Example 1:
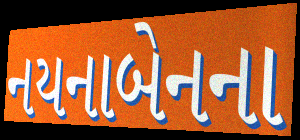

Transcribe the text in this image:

નયનાબેનના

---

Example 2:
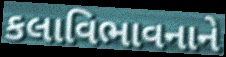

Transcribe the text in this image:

કલાવિભાવનાને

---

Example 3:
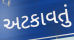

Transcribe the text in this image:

અટકાવતું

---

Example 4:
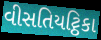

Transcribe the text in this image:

વીસતિયટ્ઠિકા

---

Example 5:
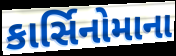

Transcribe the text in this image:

કાર્સિનોમાના